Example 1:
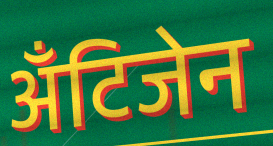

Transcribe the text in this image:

अँटिजेन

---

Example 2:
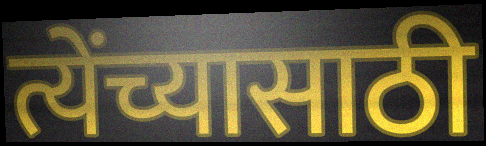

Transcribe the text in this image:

त्येंच्यासाठी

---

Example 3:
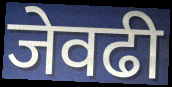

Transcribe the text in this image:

जेवढी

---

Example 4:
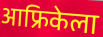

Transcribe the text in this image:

आफ्रिकेला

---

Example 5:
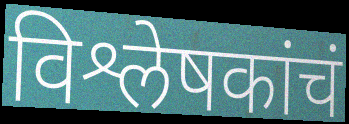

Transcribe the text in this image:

विश्लेषकांचं